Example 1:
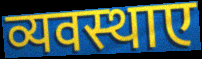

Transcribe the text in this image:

व्यवस्थाए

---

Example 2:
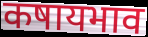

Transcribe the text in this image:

कषायभाव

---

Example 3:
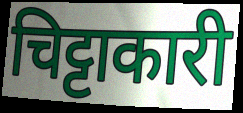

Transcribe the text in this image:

चिट्टाकारी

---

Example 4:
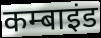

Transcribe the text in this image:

कम्बाइंड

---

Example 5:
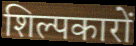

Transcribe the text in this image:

शिल्पकारों